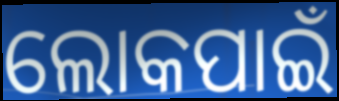
ଲୋକପାଇଁ